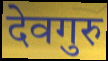
देवगुरु